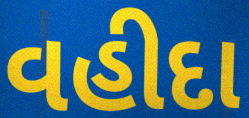
વહીદા